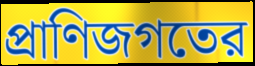
প্রাণিজগতের